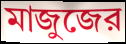
মাজুজের